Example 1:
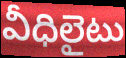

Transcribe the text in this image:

వీధిలైటు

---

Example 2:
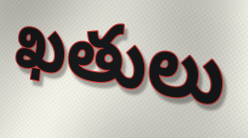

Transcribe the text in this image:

ఖతులు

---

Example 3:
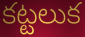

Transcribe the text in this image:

కట్టలుక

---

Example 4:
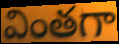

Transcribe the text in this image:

వింతగా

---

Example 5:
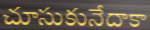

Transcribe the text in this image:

చూసుకునేదాకా